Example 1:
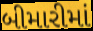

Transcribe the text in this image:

બીમારીમાં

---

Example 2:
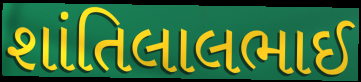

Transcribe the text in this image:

શાંતિલાલભાઈ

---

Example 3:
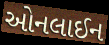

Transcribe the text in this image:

ઓનલાઈન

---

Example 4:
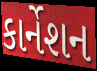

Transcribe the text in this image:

કાર્નેશન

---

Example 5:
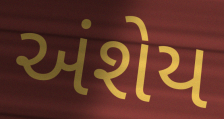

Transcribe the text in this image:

અંશેય